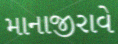
માનાજીરાવે